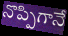
నొప్పిగానే